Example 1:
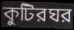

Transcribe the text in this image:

কুটিরঘর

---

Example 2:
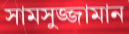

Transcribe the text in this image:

সামসুজ্জামান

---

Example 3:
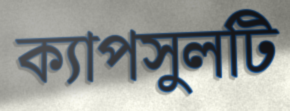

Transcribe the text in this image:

ক্যাপসুলটি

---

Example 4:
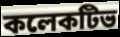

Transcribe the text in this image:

কলেকটিভ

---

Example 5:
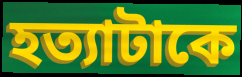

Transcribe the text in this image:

হত্যাটাকে